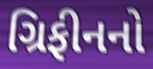
ગ્રિફીનનો